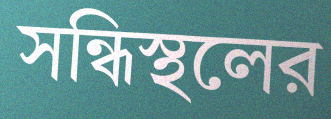
সন্ধিস্থলের